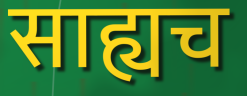
साह्यच